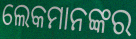
ଲେକମାନଙ୍କର